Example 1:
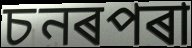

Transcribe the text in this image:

চনৰপৰা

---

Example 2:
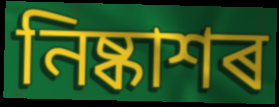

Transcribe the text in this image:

নিষ্কাশৰ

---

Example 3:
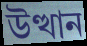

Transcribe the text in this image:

উত্থান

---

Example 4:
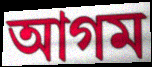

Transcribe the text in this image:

আগম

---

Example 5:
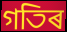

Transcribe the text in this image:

গতিৰ